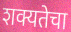
शक्यतेचा